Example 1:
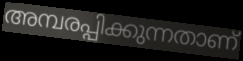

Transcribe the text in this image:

അമ്പരപ്പിക്കുന്നതാണ്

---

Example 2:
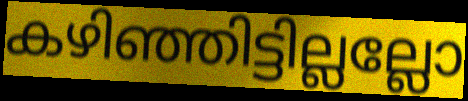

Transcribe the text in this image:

കഴിഞ്ഞിട്ടില്ലല്ലോ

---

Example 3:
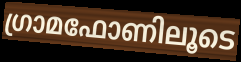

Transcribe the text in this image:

ഗ്രാമഫോണിലൂടെ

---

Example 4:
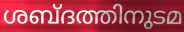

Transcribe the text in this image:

ശബ്ദത്തിനുടമ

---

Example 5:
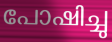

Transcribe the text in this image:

പോഷിച്ചു